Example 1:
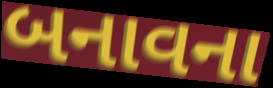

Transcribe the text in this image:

બનાવના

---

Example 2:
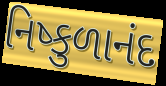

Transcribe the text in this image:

નિષ્કુળાનંદ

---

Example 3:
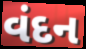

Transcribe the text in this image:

વંદન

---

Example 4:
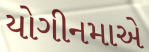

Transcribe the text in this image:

યોગીનમાએ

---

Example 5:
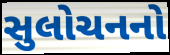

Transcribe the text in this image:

સુલોચનનો